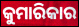
କୁମାରିକାର